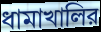
ধামাখালির